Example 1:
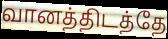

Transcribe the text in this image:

வானத்திடத்தே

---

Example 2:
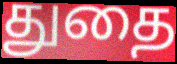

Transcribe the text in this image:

துதை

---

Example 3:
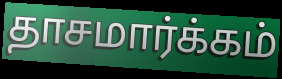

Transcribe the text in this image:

தாசமார்க்கம்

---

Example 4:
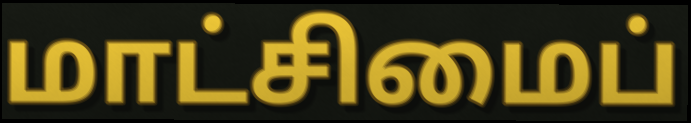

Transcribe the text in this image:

மாட்சிமைப்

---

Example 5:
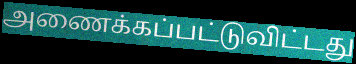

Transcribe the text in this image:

அணைக்கப்பட்டுவிட்டது